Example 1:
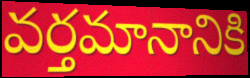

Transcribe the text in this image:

వర్తమానానికి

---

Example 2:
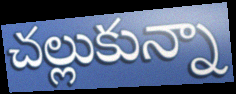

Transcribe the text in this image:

చల్లుకున్నా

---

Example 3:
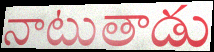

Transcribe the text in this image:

నాటుతాడు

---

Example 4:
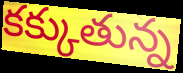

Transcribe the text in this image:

కక్కుతున్న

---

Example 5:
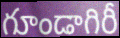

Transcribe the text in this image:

గూండాగిరీ